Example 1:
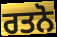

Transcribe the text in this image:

ਰਤਨੋ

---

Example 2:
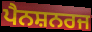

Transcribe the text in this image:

ਪੈਨਸ਼ਨਰਜ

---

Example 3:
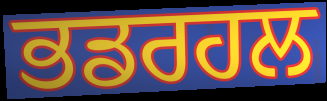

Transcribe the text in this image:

ਭਡਰਹਲ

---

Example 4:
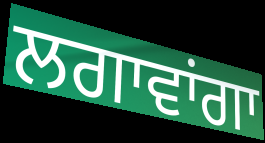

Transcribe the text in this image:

ਲਗਾਵਾਂਗਾ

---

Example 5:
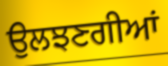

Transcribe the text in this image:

ਉਲਝਣਗੀਆਂ